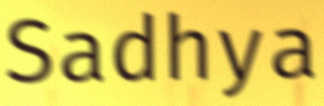
Sadhya